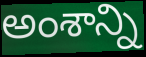
అంశాన్ని